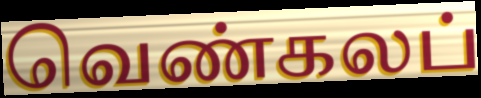
வெண்கலப்